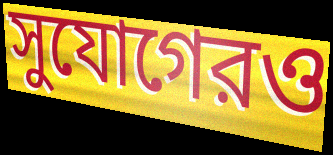
সুযোগেরও